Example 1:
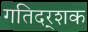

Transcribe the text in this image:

गतिदर्शक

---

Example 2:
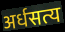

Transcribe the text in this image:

अर्धसत्य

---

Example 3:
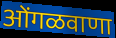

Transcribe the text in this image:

ओंगळवाणा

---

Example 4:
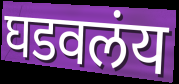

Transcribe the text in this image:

घडवलंय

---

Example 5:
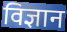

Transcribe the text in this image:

विज्ञान